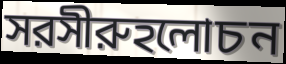
সরসীরুহলোচন